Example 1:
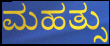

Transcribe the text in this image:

ಮಹತ್ಸು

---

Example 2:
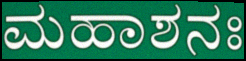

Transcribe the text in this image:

ಮಹಾಶನಃ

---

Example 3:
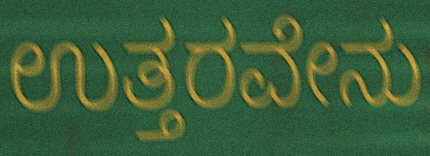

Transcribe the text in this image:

ಉತ್ತರವೇನು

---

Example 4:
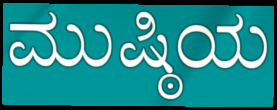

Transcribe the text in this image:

ಮುಷ್ಠಿಯ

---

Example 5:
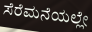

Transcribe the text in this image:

ಸೆರೆಮನೆಯಲ್ಲೇ